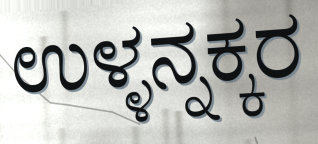
ಉಳ್ಳನ್ನಕ್ಕರ